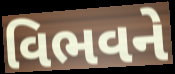
વિભવને